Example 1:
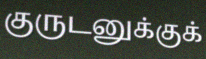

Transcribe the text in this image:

குருடனுக்குக்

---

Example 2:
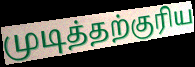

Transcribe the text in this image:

முடித்தற்குரிய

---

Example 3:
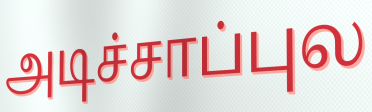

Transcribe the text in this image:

அடிச்சாப்புல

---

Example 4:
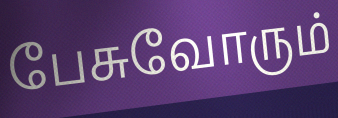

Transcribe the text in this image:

பேசுவோரும்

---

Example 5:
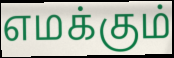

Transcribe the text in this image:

எமக்கும்